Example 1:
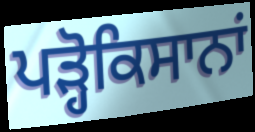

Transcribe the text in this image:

ਪੜ੍ਹੋਕਿਸਾਨਾਂ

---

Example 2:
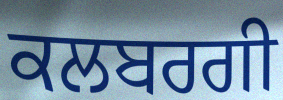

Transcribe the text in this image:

ਕਲਬਰਗੀ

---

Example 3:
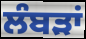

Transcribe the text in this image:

ਲੰਬੜਾਂ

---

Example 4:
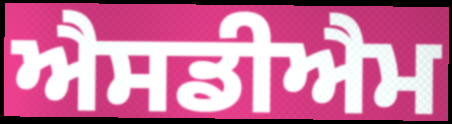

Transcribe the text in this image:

ਐਸਡੀਐਮ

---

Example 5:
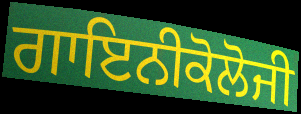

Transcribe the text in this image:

ਗਾਇਨੀਕੋਲੋਜੀ